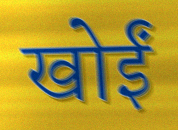
खोईं